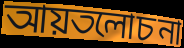
আয়তলোচনা